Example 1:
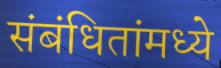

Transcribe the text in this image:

संबंधितांमध्ये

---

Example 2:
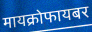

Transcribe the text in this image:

मायक्रोफायबर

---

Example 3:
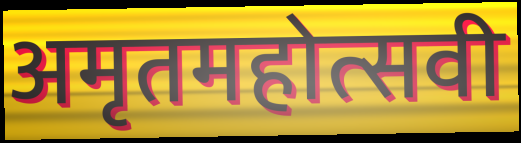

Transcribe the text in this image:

अमृतमहोत्सवी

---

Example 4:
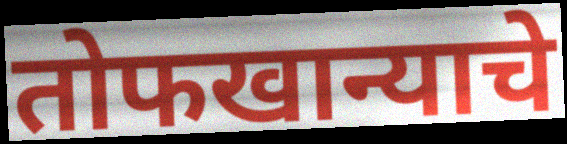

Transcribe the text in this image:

तोफखान्याचे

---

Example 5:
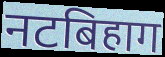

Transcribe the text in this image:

नटबिहाग